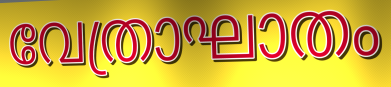
വേത്രാഘാതം